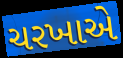
ચરખાએ